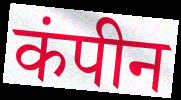
कंपीन